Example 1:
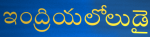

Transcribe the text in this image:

ఇంద్రియలోలుడై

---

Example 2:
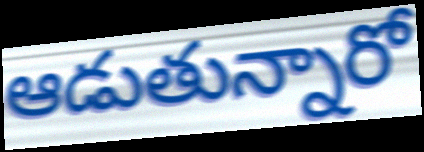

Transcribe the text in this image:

ఆడుతున్నారో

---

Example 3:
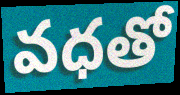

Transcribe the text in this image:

వధతో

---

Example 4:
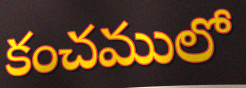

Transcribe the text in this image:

కంచములో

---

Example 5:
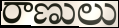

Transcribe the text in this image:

రాణులు